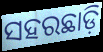
ସହରଛାଡ଼ି